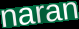
naran